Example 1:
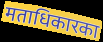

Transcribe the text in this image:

मताधिकारका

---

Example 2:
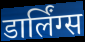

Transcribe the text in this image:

डार्लिंग्स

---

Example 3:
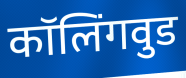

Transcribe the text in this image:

कॉलिंगवुड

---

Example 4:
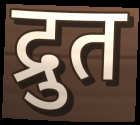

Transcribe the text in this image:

द्रुत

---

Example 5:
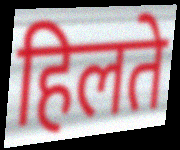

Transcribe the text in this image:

हिलते